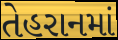
તેહરાનમાં